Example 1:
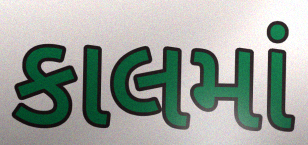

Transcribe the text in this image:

કાલમાં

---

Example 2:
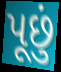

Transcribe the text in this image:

પૂછું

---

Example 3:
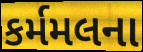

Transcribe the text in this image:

કર્મમલના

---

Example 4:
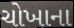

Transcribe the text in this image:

ચોખાના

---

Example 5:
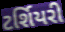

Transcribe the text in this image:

ટર્શિયરી